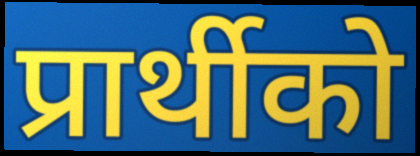
प्रार्थीको